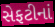
સેફટીનાં